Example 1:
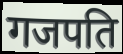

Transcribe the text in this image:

गजपति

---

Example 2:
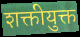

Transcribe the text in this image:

शक्तीयुक्त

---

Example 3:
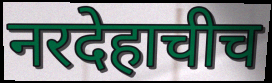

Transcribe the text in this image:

नरदेहाचीच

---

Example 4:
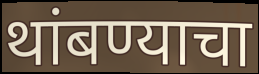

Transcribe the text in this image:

थांबण्याचा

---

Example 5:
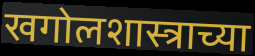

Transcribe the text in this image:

खगोलशास्त्राच्या